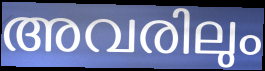
അവരിലും